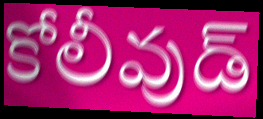
కోలీవుడ్